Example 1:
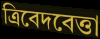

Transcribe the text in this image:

ত্রিবেদবেত্তা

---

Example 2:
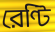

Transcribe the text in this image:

রেণ্টি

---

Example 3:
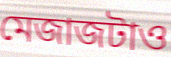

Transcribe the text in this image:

মেজাজটাও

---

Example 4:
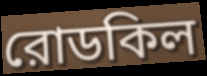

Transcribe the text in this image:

রোডকিল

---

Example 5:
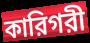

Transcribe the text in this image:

কারিগরী